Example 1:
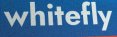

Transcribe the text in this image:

whitefly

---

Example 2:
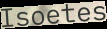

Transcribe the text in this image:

Isoetes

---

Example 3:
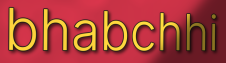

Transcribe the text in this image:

bhabchhi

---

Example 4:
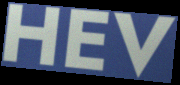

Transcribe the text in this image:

HEV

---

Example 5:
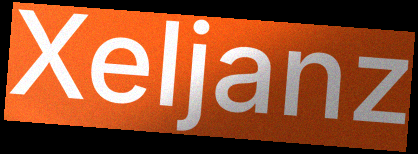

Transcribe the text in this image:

Xeljanz